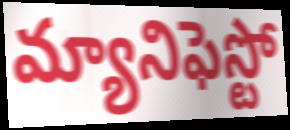
మ్యానిఫెస్టో